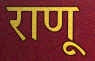
राणू